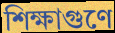
শিক্ষাগুণে